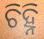
ଚିହ୍ନି